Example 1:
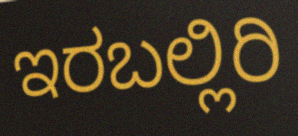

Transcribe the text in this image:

ಇರಬಲ್ಲಿರಿ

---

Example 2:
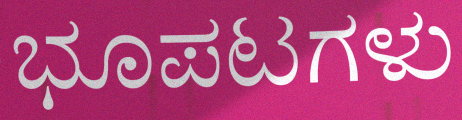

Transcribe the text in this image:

ಭೂಪಟಗಳು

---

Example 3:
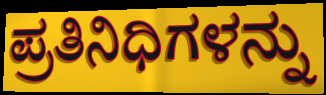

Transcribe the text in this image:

ಪ್ರತಿನಿಧಿಗಳನ್ನು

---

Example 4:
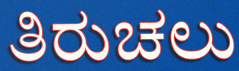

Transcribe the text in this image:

ತಿರುಚಲು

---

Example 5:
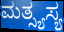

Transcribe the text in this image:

ಮತ್ಸ್ಯಸ್ಯ